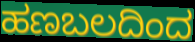
ಹಣಬಲದಿಂದ